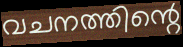
വചനത്തിന്റെ